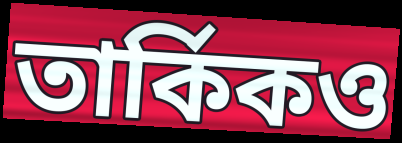
তার্কিকও